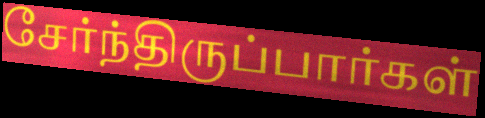
சேர்ந்திருப்பார்கள்